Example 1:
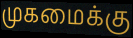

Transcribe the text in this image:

முகமைக்கு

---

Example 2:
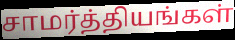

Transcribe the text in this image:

சாமர்த்தியங்கள்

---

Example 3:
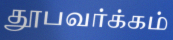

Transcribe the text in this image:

தூபவர்க்கம்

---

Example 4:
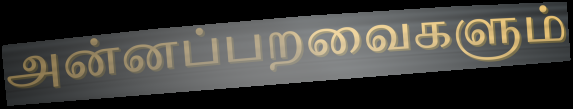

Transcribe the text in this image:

அன்னப்பறவைகளும்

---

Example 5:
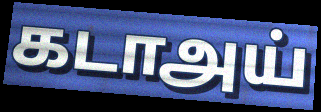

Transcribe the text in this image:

கடாஅய்